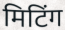
मिटिंग